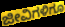
ಜೀವಿಗಳಿಗೂ